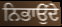
ਨਿਭਾਉਂਦੇ